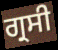
ਗ੍ਰਸੀ